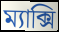
ম্যাক্সি